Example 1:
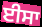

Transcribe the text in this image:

ਈਸਾ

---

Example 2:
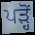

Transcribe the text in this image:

ਪੜ੍ਹੋਂ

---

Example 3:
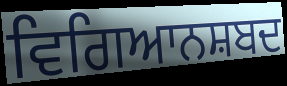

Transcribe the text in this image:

ਵਿਗਿਆਨਸ਼ਬਦ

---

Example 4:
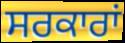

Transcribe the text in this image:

ਸਰਕਾਰਾਂ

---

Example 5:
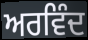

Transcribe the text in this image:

ਅਰਵਿੰਦ